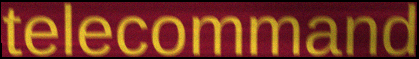
telecommand